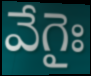
వేగైః